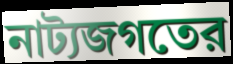
নাট্যজগতের